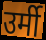
उर्मी